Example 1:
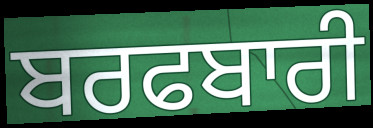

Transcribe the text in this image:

ਬਰਫਬਾਰੀ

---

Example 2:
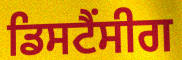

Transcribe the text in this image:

ਡਿਸਟੈਂਸੀਗ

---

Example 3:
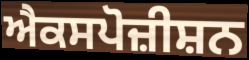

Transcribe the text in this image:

ਐਕਸਪੋਜ਼ੀਸ਼ਨ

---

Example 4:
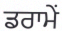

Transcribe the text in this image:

ਡਰਾਮੇਂ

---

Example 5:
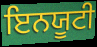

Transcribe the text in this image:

ਇਨਯੂਟੀ